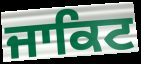
ਜਾਕਿਟ